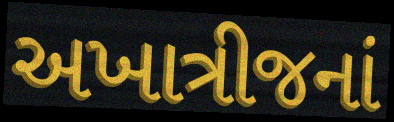
અખાત્રીજનાં